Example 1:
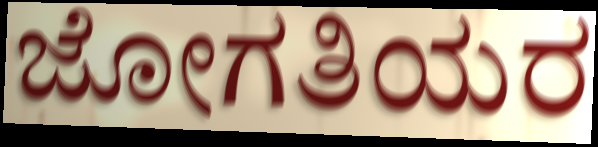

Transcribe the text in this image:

ಜೋಗತಿಯರ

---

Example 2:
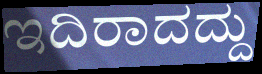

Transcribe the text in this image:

ಇದಿರಾದದ್ದು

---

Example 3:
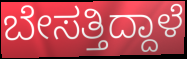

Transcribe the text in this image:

ಬೇಸತ್ತಿದ್ದಾಳೆ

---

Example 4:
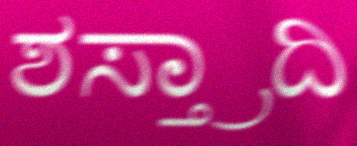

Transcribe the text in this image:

ಶಸ್ತ್ರಾದಿ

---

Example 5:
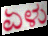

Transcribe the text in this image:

ಏಳು